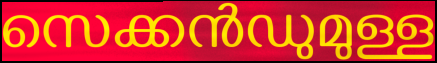
സെക്കൻഡുമുള്ള